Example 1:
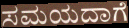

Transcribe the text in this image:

ಸಮಯದಾಗೆ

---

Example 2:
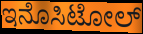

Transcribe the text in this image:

ಇನೊಸಿಟೋಲ್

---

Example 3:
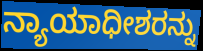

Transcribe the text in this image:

ನ್ಯಾಯಾಧೀಶರನ್ನು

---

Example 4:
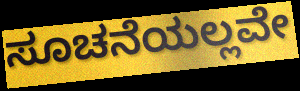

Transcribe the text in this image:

ಸೂಚನೆಯಲ್ಲವೇ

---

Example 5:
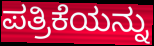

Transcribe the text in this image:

ಪತ್ರಿಕೆಯನ್ನು